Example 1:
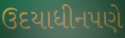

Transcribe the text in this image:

ઉદયાધીનપણે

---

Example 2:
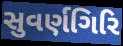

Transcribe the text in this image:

સુવર્ણગિરિ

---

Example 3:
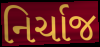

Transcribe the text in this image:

નિર્ચાજ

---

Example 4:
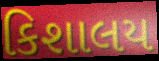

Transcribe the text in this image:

કિશાલય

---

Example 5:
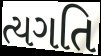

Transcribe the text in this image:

ત્યગતિ